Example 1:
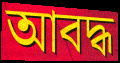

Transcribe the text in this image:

আবদ্ধ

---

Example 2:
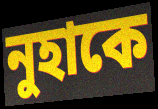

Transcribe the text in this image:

নুহাকে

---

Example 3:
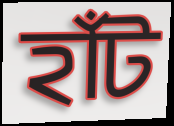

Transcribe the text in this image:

হাঁট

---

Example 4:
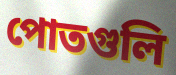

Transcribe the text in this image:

পোতগুলি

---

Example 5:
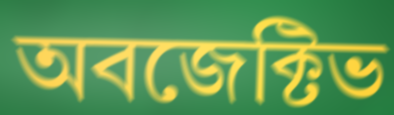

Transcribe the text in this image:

অবজেক্টিভ